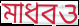
মাধবও